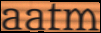
aatm